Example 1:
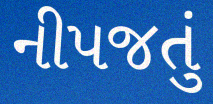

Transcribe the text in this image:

નીપજતું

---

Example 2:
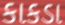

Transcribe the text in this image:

કાકડા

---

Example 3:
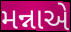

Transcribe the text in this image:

મન્નાએ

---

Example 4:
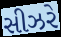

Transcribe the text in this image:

સીઝરે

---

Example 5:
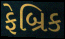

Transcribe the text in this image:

ફેબ્રિક